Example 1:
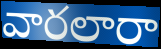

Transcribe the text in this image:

వారలారా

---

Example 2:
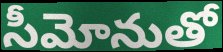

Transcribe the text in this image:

సీమోనుతో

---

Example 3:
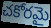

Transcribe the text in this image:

చకోరమై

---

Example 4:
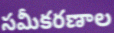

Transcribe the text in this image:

సమీకరణాల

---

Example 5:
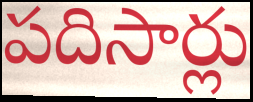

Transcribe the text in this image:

పదిసార్లు